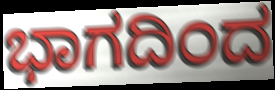
ಭಾಗದಿಂದ